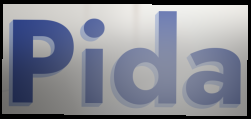
Pida